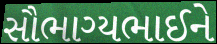
સૌભાગ્યભાઈને